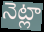
నెట్లా